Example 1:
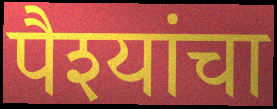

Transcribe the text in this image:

पैश्यांचा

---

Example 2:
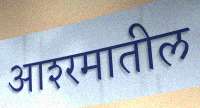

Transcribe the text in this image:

आश्रमातील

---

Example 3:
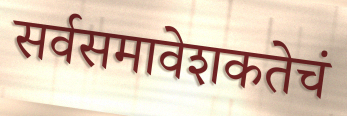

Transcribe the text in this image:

सर्वसमावेशकतेचं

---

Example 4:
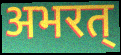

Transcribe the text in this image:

अभरत्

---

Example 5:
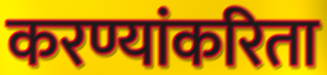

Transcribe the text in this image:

करण्यांकरिता